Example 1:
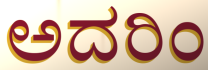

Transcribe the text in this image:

ಅದರಿಂ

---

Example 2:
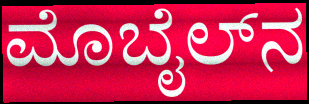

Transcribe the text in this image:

ಮೊಬೈಲ್‌ನ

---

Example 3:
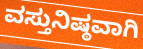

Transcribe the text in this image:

ವಸ್ತುನಿಷ್ಠವಾಗಿ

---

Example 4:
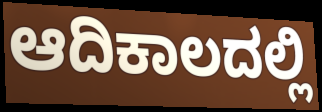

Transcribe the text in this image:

ಆದಿಕಾಲದಲ್ಲಿ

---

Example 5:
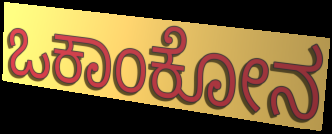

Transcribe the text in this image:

ಒಕಾಂಕೋನ